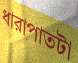
ধারাপাতটা